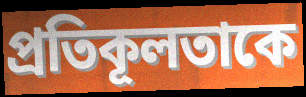
প্রতিকূলতাকে